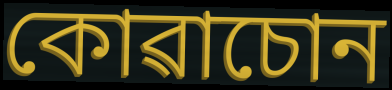
কোৱাচোন